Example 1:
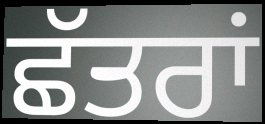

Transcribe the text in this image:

ਛੱਤਰਾਂ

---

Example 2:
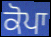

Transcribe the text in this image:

ਕੋਪਾ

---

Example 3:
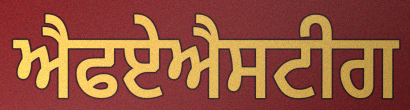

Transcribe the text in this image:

ਐਫਏਐਸਟੀਗ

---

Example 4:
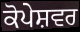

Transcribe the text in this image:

ਕੋਪੇਸ਼ਵਰ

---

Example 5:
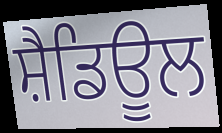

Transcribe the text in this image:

ਸ਼ੈਡਿਊਲ